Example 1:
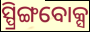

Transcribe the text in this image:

ସ୍ପ୍ରିଙ୍ଗବୋକ୍ସ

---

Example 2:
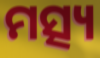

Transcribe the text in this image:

ମତ୍ସ୍ୟ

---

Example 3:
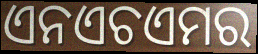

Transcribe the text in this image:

ଏନଏଚଏମର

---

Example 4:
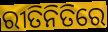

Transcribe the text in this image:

ରୀତିନିତିରେ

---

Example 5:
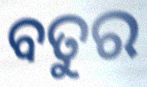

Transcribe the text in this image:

ବତୁର